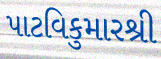
પાટવિકુમારશ્રી